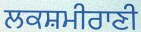
ਲਕਸ਼ਮੀਰਾਣੀ